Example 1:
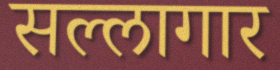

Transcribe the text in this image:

सल्लागार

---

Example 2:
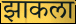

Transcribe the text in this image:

झाकला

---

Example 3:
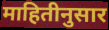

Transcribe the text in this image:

माहितीनुसार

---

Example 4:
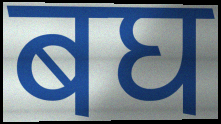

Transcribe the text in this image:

बघ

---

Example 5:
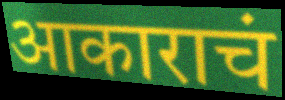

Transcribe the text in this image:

आकाराचं